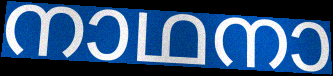
നാഥനാ